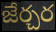
జేర్చర